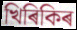
খিৰিকিৰ